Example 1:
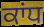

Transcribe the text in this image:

ਕਾਂਧ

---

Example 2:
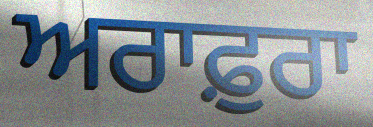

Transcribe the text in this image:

ਅਰਾਫ਼ੁਰਾ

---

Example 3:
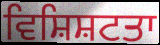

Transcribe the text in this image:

ਵਿਸ਼ਿਸ਼ਟਤਾ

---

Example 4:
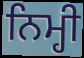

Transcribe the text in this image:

ਨਿਮ੍ਹੀ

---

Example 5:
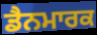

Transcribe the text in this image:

ਡੈਨਮਾਰਕ